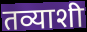
तव्याशी